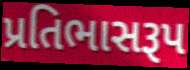
પ્રતિભાસરૂપ